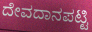
ದೇವದಾನಪಟ್ಟಿ